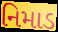
નિમાડ